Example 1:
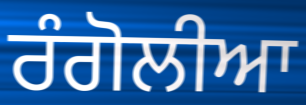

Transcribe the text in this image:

ਰੰਗੋਲੀਆ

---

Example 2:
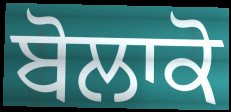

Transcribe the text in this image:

ਬੋਲਾਕੋ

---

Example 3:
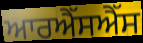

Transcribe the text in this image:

ਆਰਐੱਸਐੱਸ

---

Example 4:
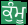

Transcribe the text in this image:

ਕੁੰਮੂ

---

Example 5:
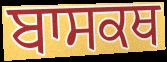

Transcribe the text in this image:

ਬਾਸਕਥ